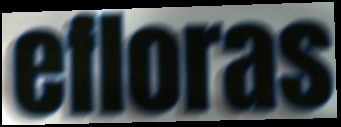
efloras